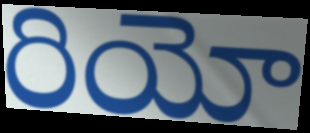
రియో